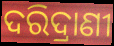
ଦରିଦ୍ରାଣୀ